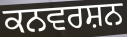
ਕਨਵਰਸ਼ਨ